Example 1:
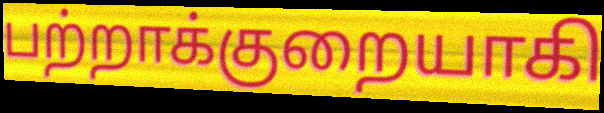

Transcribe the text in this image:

பற்றாக்குறையாகி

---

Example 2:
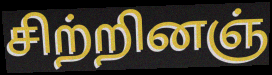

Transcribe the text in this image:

சிற்றினஞ்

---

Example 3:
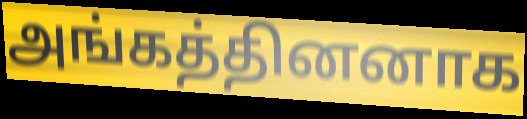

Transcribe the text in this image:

அங்கத்தினனாக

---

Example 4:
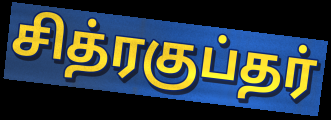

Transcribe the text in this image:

சித்ரகுப்தர்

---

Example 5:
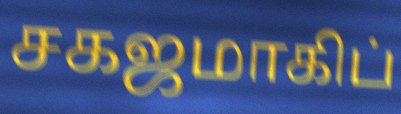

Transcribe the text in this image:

சகஜமாகிப்